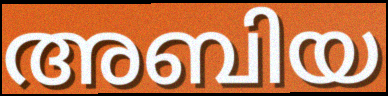
അബിയ